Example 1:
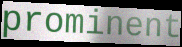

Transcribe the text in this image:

prominent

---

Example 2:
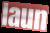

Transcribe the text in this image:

laun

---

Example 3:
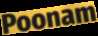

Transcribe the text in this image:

Poonam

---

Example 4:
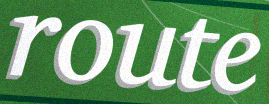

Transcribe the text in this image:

route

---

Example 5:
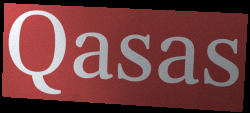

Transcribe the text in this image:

Qasas